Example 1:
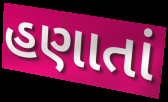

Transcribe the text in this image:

હણાતાં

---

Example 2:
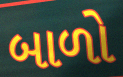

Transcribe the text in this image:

બાળો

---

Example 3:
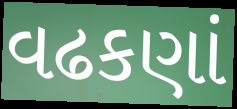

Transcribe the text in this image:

વઢકણાં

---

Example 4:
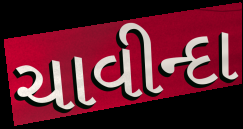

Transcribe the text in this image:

ચાવીન્દા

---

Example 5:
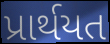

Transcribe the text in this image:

પ્રાર્થયત